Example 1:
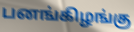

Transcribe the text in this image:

பனங்கிழங்கு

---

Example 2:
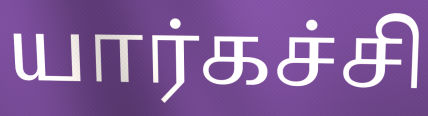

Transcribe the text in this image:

யார்கச்சி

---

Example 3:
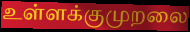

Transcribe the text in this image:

உள்ளக்குமுறலை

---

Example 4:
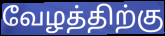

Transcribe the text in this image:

வேழத்திற்கு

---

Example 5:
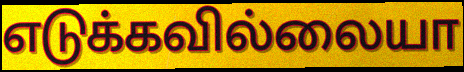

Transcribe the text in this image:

எடுக்கவில்லையா